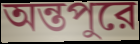
অন্তপুরে